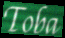
Toba